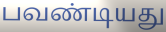
பவண்டியது